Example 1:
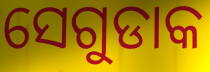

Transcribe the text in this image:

ସେଗୁଡାକ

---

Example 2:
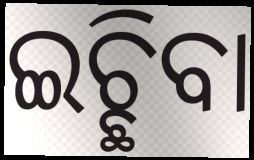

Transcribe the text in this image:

ଇଚ୍ଛିବା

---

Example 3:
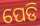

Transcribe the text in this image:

ପେଡି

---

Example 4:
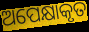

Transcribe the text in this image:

ଅପେକ୍ଷାକୃତ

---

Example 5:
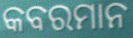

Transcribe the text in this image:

କବରମାନ